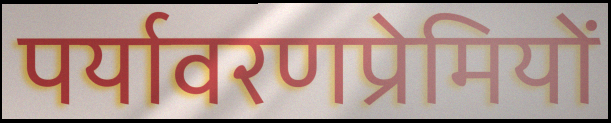
पर्यावरणप्रेमियों